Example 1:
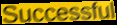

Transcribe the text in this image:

Successful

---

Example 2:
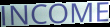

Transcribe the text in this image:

INCOME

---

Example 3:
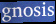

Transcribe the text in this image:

gnosis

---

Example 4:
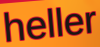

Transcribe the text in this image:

heller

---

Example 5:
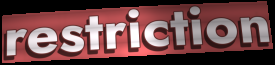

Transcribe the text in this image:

restriction